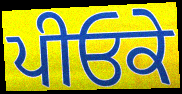
ਪੀਓਕੇ